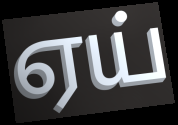
ஏய்